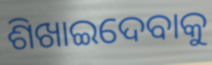
ଶିଖାଇଦେବାକୁ